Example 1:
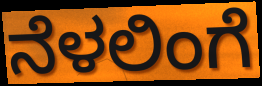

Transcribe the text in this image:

ನೆಳಲಿಂಗೆ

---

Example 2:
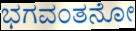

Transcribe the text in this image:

ಭಗವಂತನೋ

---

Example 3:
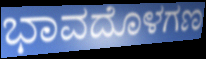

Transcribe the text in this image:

ಭಾವದೊಳಗಣ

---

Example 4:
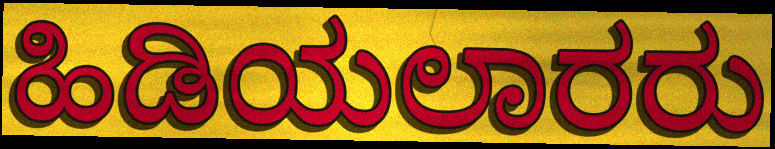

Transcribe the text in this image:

ಹಿಡಿಯಲಾರರು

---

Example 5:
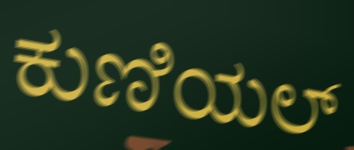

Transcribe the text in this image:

ಕುಣಿಯಲ್